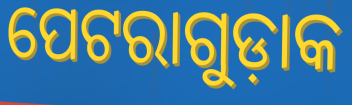
ପେଟରାଗୁଡ଼ାକ